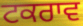
ਟਕਰਾਵ